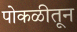
पोकळीतून